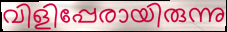
വിളിപ്പേരായിരുന്നു